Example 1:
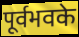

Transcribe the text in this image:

पूर्वभवके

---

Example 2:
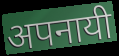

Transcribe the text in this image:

अपनायी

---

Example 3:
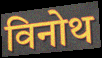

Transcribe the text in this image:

विनोथ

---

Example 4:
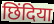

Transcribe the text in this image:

छिंदिया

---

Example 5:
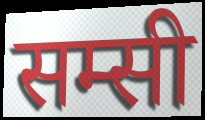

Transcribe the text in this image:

सम्सी